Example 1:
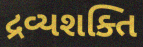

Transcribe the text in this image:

દ્રવ્યશક્તિ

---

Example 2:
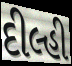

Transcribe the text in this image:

દીલ્હી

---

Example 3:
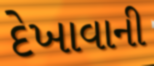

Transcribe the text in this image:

દેખાવાની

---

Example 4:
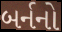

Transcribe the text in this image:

બર્નનો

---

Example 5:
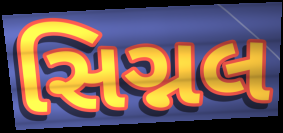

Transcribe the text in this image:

સિગ્નલ